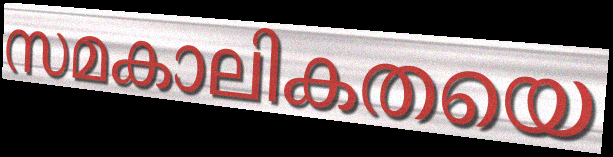
സമകാലികതയെ